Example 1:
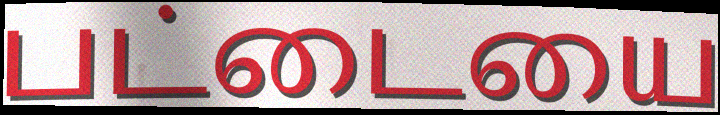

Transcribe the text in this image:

பட்டையை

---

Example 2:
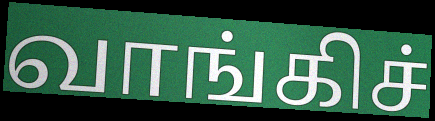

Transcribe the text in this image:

வாங்கிச்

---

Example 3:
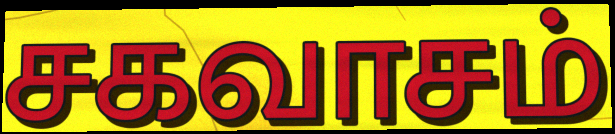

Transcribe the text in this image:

சகவாசம்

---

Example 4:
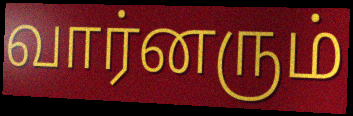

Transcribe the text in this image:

வார்னரும்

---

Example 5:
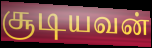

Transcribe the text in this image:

சூடியவன்